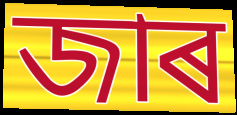
জাৰ